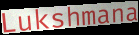
Lukshmana